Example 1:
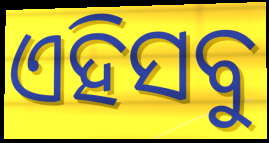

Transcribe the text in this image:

ଏହିସବୁ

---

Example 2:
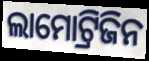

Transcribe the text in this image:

ଲାମୋଟ୍ରିଜିନ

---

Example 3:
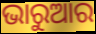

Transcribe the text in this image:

ଭାରୁଆର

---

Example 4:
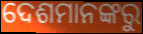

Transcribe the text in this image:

ଦେଶମାନଙ୍କରୁ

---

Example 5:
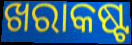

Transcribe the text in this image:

ଖରାକଷ୍ଟ